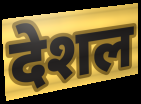
देशल